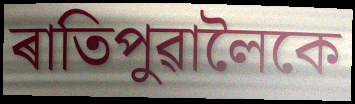
ৰাতিপুৱালৈকে